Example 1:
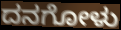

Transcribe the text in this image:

ದನಗೋಳು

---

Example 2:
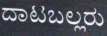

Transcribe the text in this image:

ದಾಟಬಲ್ಲರು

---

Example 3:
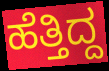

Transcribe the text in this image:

ಹೆತ್ತಿದ್ದ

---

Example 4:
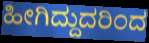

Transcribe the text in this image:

ಹೀಗಿದ್ದುದರಿಂದ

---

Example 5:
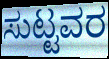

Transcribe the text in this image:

ಸುಟ್ಟವರ